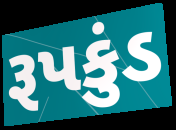
રૂપકુંડ